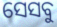
ସେସବୁ